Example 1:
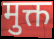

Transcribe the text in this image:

मुक्त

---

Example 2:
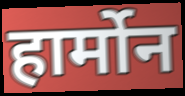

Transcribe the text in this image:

हार्मोन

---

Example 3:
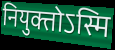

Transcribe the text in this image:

नियुक्तोऽस्मि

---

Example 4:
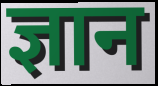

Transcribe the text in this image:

ज्ञान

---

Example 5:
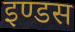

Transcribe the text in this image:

इण्डस